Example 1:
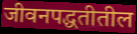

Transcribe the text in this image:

जीवनपद्धतीतील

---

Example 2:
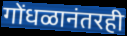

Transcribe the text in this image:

गोंधळानंतरही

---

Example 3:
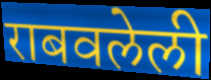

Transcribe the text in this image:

राबवलेली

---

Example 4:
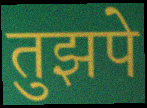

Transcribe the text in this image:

तुझपे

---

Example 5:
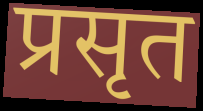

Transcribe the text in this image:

प्रसृत